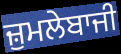
ਜ਼ੁਮਲੇਬਾਜੀ